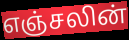
எஞ்சலின்